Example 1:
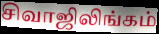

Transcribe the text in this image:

சிவாஜிலிங்கம்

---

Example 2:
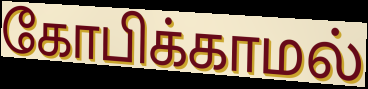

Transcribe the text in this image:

கோபிக்காமல்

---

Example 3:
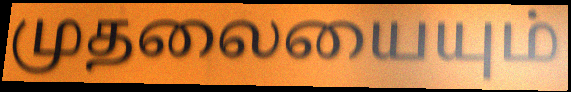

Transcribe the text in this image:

முதலையையும்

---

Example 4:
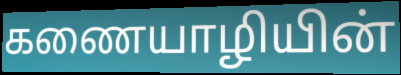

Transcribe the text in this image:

கணையாழியின்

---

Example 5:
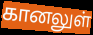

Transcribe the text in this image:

கானலுள்